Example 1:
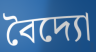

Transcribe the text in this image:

বৈদ্যো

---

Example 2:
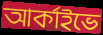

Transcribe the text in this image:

আর্কাইভে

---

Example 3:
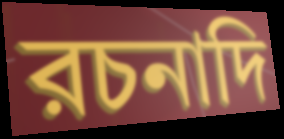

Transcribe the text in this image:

রচনাদি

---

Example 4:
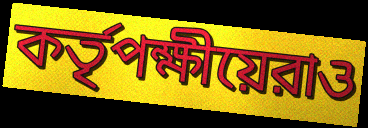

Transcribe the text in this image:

কর্তৃপক্ষীয়েরাও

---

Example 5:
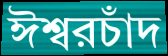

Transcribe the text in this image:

ঈশ্বরচাঁদ